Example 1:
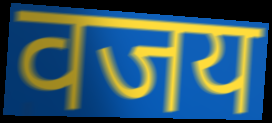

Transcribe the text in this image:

वजय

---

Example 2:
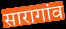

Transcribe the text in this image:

सारागांव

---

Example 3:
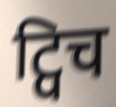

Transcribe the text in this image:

ट्विच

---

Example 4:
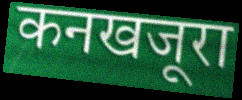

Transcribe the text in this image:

कनखजूरा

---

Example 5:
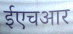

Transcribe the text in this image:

ईएचआर